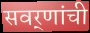
सवर्णांची